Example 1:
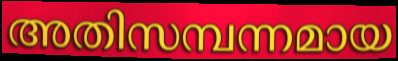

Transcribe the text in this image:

അതിസമ്പന്നമായ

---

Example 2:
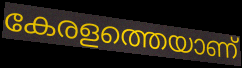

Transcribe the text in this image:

കേരളത്തെയാണ്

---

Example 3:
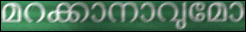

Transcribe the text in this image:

മറക്കാനാവുമോ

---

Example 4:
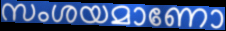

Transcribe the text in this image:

സംശയമാണോ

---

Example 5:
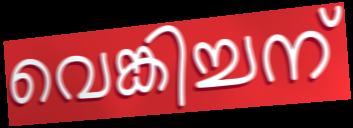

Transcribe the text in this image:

വെങ്കിച്ചന്